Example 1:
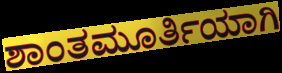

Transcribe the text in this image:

ಶಾಂತಮೂರ್ತಿಯಾಗಿ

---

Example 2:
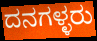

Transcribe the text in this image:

ದನಗಳ್ಳರು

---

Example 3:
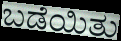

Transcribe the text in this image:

ಬಡೆಯಿತು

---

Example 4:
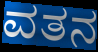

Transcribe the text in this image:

ವತನ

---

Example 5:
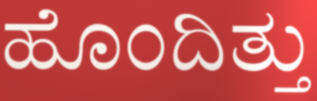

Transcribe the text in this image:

ಹೊಂದಿತ್ತು